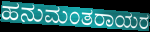
ಹನುಮಂತರಾಯರ